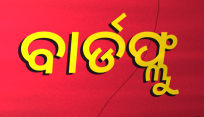
ବାର୍ଡଫ୍ଲୁ